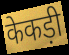
केकड़ी